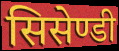
सिसेण्डी